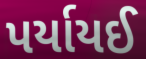
પર્યાયઈ